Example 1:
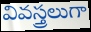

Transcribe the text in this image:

వివస్త్రలుగా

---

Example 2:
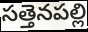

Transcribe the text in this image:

సత్తెనపల్లి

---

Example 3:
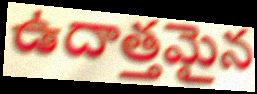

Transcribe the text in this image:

ఉదాత్తమైన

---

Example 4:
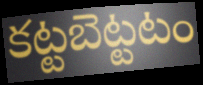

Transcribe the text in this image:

కట్టబెట్టటం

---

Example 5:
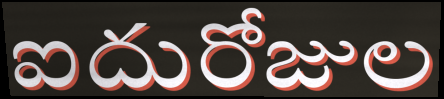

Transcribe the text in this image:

ఐదురోజుల